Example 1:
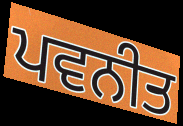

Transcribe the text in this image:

ਪਵਨੀਤ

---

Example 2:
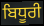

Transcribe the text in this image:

ਬਿਧੂਰੀ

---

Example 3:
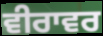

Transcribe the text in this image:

ਵੀਰਾਵਰ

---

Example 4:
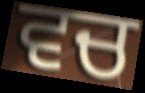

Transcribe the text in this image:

ਵਚ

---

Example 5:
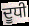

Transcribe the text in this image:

ਦੂਧੀ